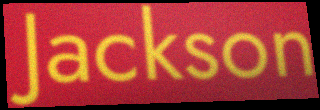
Jackson